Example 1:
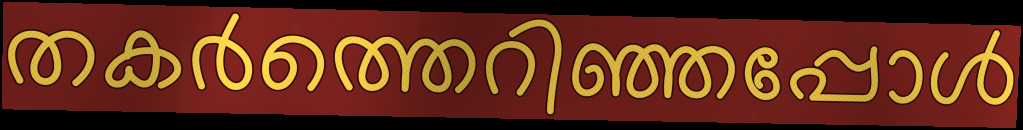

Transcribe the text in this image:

തകർത്തെറിഞ്ഞപ്പോൾ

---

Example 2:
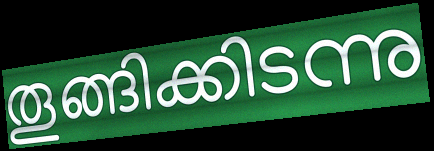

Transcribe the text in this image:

തൂങ്ങിക്കിടന്നു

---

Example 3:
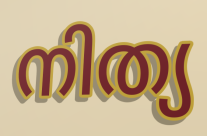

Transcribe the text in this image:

നിത്യ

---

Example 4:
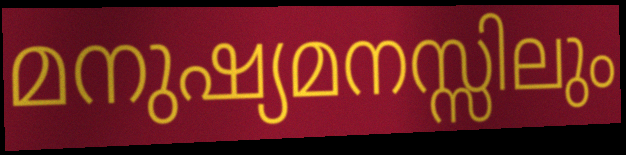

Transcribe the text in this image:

മനുഷ്യമനസ്സിലും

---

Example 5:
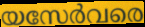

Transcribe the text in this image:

യസേർവരെ